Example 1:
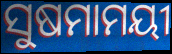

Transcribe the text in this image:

ସୁଷମାମୟୀ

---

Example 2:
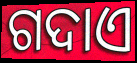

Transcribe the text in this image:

ଗଦାଏ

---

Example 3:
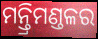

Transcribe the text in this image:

ମନ୍ତ୍ରିମଣ୍ଡଳର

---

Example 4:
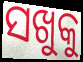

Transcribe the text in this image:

ସଖୁକୁ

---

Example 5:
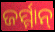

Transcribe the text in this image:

ଜର୍ମ୍ମାନ୍